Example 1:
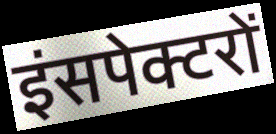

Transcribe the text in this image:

इंसपेक्टरों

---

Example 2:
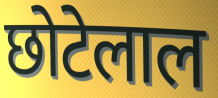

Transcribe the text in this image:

छोटेलाल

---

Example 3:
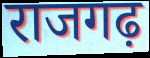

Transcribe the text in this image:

राजगढ़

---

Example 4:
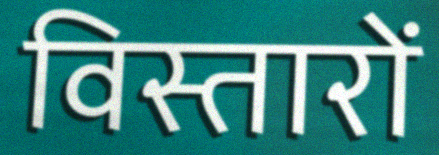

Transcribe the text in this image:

विस्तारों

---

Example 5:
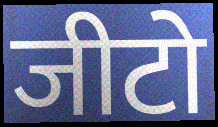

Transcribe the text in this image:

जीटो